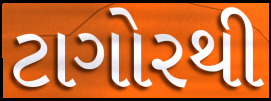
ટાગોરથી